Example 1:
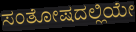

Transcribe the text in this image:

ಸಂತೋಷದಲ್ಲಿಯೇ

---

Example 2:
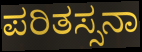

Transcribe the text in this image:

ಪರಿತಸ್ಸನಾ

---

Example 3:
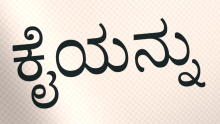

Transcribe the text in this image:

ಕೈಯನ್ನು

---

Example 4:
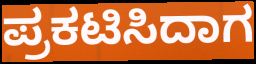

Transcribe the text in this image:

ಪ್ರಕಟಿಸಿದಾಗ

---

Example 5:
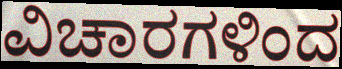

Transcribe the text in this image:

ವಿಚಾರಗಳಿಂದ